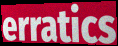
erratics